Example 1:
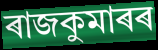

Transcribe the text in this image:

ৰাজকুমাৰৰ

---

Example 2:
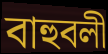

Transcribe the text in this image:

বাহুবলী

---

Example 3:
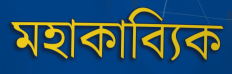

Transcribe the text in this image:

মহাকাব্যিক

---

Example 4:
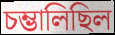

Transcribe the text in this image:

চম্ভালিছিল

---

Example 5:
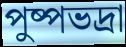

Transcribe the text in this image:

পুষ্পভদ্ৰা